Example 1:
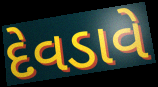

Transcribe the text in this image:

દેવડાવે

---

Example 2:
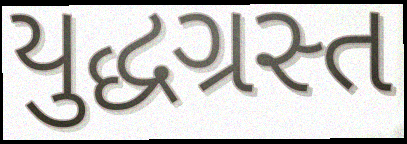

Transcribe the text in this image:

યુદ્ધગ્રસ્ત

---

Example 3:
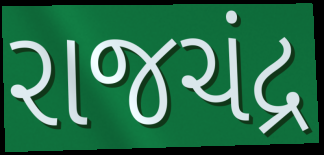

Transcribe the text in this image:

રાજચંદ્ર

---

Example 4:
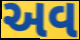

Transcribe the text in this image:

અવ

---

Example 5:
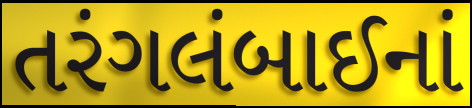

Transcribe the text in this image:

તરંગલંબાઈનાં